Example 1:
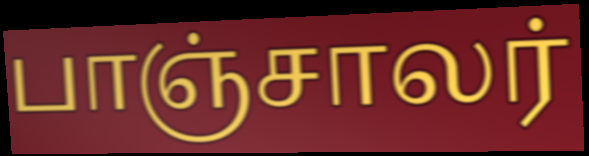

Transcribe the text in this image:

பாஞ்சாலர்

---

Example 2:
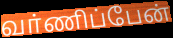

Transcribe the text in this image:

வர்ணிப்பேன்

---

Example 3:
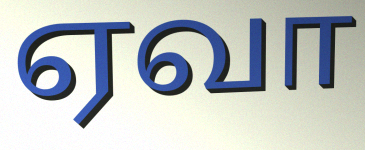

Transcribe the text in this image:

ஏவா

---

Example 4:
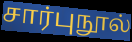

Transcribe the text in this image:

சார்புநூல்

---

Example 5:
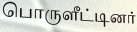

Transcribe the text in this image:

பொருளீட்டினர்